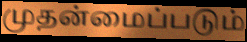
முதன்மைப்படும்